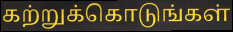
கற்றுக்கொடுங்கள்